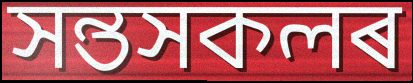
সন্তসকলৰ